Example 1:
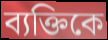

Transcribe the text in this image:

ব্যক্তিকে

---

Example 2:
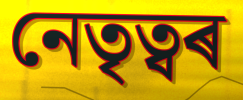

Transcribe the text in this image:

নেতৃত্বৰ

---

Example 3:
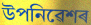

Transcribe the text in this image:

উপনিৱেশৰ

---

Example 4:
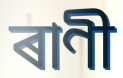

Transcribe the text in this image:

ৰাণী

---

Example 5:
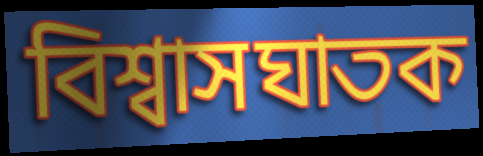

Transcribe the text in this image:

বিশ্বাসঘাতক